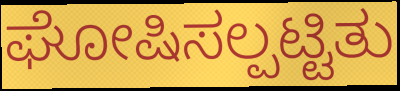
ಘೋಷಿಸಲ್ಪಟ್ಟಿತು